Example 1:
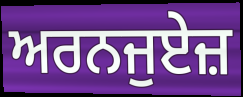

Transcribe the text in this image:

ਅਰਨਜੁਏਜ਼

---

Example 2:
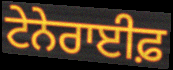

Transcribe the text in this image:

ਟੇਨੇਰਾਈਫ਼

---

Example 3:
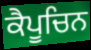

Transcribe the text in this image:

ਕੈਪੂਚਿਨ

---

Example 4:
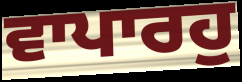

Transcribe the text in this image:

ਵਾਪਾਰਹੁ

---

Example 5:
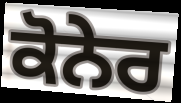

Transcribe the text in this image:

ਕੋਨੇਰ